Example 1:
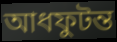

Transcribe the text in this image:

আধফুটন্ত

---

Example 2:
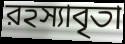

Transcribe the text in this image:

রহস্যাবৃতা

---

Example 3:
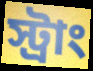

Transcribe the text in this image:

স্ট্রাং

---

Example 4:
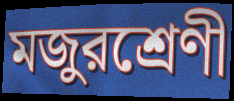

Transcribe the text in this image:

মজুরশ্রেণী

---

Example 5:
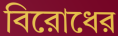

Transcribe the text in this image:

বিরোধের